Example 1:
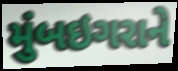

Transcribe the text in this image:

મુંબઇગરાને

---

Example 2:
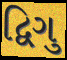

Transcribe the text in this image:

દ્વિગુ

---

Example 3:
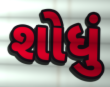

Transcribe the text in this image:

શોધું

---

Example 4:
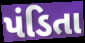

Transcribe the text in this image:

પંડિતા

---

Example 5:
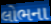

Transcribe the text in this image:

લોભના